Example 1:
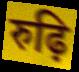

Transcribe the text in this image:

रुढ़ि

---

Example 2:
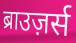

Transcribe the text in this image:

ब्राउज़र्स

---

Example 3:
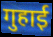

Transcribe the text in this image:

गुहाई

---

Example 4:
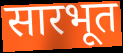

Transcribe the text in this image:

सारभूत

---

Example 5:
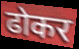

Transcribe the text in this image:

ढोकर